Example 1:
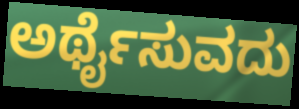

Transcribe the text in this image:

ಅರ್ಥೈಸುವದು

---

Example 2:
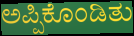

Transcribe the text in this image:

ಅಪ್ಪಿಕೊಂಡಿತು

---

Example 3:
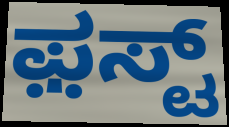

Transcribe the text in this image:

ಫ಼ಸ್ಟ್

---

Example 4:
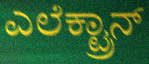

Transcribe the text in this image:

ಎಲೆಕ್ಟ್ರಾನ್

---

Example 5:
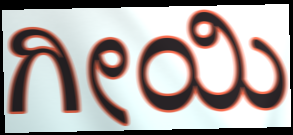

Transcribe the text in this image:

ಗೀಯಿ